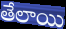
తేలాయి